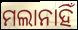
ମଲାନାହିଁ